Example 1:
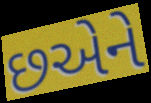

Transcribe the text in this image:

છએને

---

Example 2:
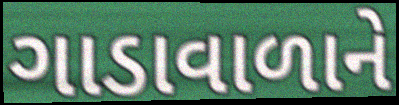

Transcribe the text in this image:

ગાડાવાળાને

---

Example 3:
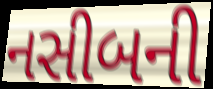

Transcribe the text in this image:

નસીબની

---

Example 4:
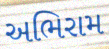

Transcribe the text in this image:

અભિરામ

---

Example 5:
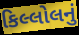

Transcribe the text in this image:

કિલ્લોલનું